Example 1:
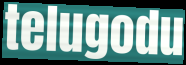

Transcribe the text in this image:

telugodu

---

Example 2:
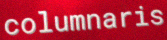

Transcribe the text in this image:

columnaris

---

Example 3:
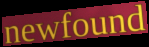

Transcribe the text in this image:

newfound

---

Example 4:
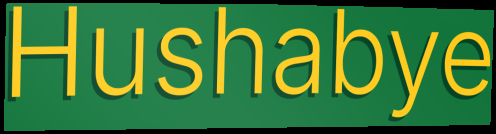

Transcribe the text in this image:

Hushabye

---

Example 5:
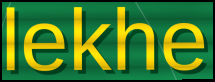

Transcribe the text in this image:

lekhe